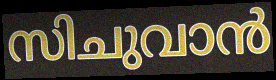
സിചുവാൻ